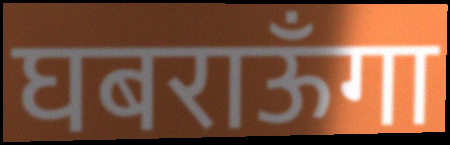
घबराऊँगा